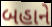
બહાને